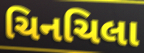
ચિનચિલા